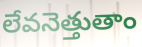
లేవనెత్తుతాం